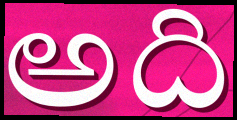
అది